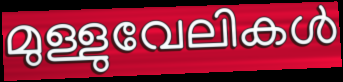
മുള്ളുവേലികൾ